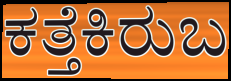
ಕತ್ತೆಕಿರುಬ